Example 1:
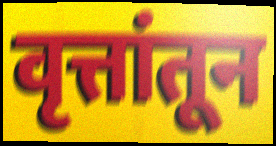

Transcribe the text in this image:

वृत्तांतून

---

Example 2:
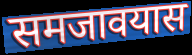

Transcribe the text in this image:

समजावयास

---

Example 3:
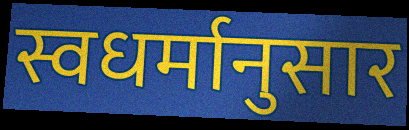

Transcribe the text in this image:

स्वधर्मानुसार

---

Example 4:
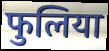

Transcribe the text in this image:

फुलिया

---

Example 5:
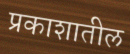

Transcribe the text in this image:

प्रकाशातील